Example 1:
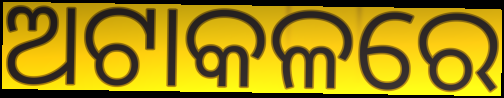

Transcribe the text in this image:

ଅଟାକଳରେ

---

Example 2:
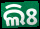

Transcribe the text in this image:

ଲିଃ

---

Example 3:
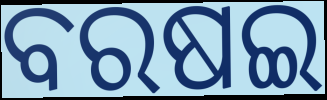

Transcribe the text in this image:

ବରଷଇ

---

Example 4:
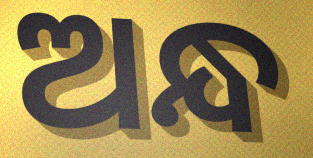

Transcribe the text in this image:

ଅନ୍ଧ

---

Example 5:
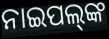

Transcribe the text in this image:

ନାଇପଲ୍‍ଙ୍କ